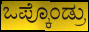
ಒಪ್ಕೊಂಡ್ರು